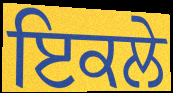
ਇਕਲੇ